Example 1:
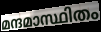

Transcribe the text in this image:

മന്ദമാസ്ഥിതം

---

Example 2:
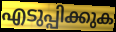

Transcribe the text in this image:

എടുപ്പിക്കുക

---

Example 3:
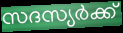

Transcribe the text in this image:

സദസ്യർക്ക്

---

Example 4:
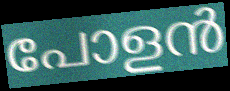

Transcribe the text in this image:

പോളൻ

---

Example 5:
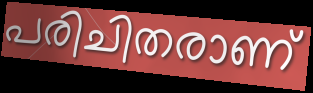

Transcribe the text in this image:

പരിചിതരാണ്